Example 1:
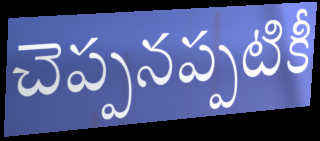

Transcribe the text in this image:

చెప్పనప్పటికీ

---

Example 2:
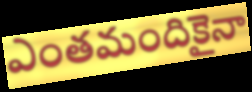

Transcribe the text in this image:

ఎంతమందికైనా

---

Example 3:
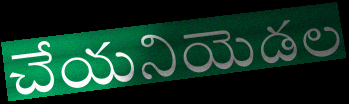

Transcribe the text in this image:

చేయనియెడల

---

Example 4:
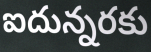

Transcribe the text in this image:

ఐదున్నరకు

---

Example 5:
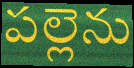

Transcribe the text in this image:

పల్లెను